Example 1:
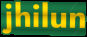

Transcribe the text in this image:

jhilun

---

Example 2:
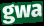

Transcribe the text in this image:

gwa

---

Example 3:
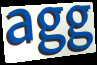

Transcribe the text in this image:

agg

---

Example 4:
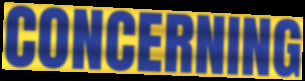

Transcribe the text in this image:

CONCERNING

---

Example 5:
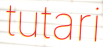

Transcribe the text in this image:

tutari